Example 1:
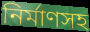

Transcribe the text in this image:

নির্মাণসহ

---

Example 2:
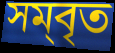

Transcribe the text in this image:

সম্‌বৃত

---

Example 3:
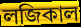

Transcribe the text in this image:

লজিকাল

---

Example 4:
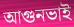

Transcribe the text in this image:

আগুনভাই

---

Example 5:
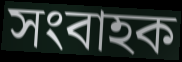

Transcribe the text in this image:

সংবাহক